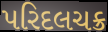
પરિદલચક્ર